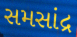
સમસાંદ્ર